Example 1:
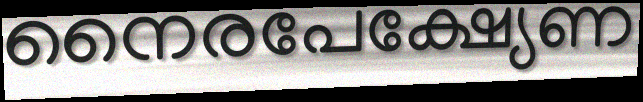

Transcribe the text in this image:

നൈരപേക്ഷ്യേണ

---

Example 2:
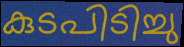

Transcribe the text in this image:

കുടപിടിച്ചു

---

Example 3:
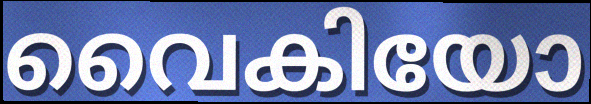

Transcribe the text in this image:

വൈകിയോ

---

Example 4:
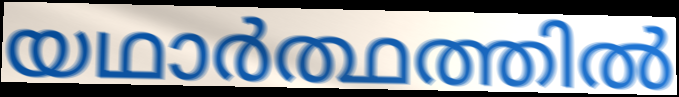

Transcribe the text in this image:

യഥാർത്ഥത്തിൽ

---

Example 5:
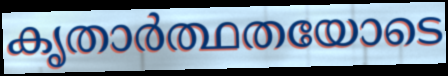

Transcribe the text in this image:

കൃതാർത്ഥതയോടെ